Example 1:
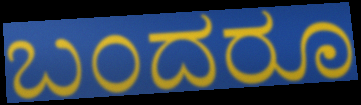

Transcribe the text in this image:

ಬಂದರೂ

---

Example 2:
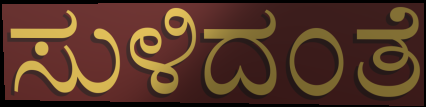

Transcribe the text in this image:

ಸುಳಿದಂತೆ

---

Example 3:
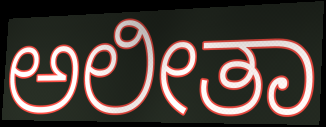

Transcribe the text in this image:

ಅಲೀತಾ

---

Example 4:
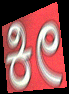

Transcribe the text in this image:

ಕೀ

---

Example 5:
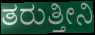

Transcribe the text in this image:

ತರುತ್ತೀನಿ